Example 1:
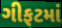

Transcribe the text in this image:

ગીફટમાં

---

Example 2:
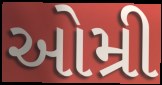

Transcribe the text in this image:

ઓમ્રી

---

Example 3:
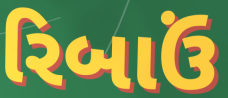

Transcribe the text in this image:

રિબાઉં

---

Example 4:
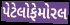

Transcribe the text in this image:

પેટેલોફેમોરલ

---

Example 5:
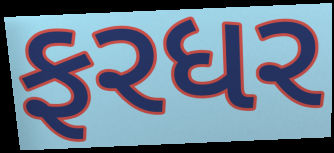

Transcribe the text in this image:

ફરધર